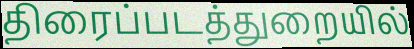
திரைப்படத்துறையில்